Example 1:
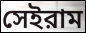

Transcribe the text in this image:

সেইরাম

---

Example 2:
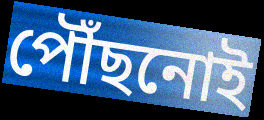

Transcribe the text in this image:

পৌঁছনোই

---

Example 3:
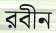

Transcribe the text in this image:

রবীন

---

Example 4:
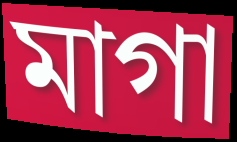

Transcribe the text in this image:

মাগা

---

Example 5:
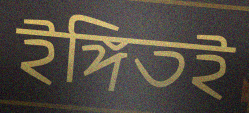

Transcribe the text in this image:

ইঙ্গিতই